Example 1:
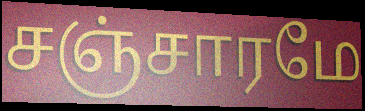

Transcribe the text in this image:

சஞ்சாரமே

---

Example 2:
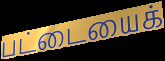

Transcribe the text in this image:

பட்டையைக்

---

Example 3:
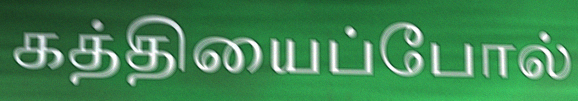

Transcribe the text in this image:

கத்தியைப்போல்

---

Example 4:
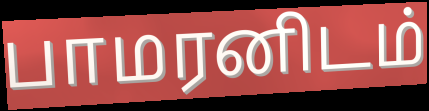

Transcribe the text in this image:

பாமரனிடம்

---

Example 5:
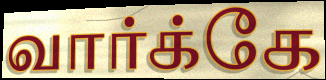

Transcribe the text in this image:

வார்க்கே